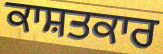
ਕਾਸ਼ਤਕਾਰ